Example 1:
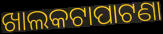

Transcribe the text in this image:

ଖାଲକଟାପାଟଣା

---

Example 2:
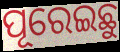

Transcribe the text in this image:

ପୂରେଇଛୁ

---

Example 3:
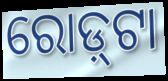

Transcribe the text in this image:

ରୋଡ଼୍‌ଟା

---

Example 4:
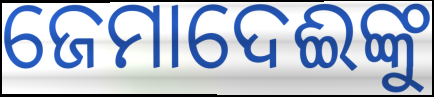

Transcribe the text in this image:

ଜେମାଦେଈଙ୍କୁ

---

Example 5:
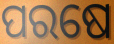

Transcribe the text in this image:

ପରଷେ